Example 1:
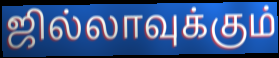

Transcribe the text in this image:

ஜில்லாவுக்கும்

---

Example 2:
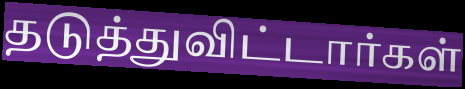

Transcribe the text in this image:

தடுத்துவிட்டார்கள்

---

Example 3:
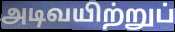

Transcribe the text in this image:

அடிவயிற்றுப்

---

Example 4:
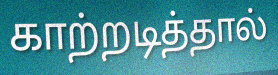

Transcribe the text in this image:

காற்றடித்தால்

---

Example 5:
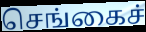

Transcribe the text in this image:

செங்கைச்